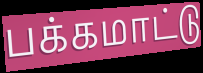
பக்கமாட்டு